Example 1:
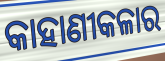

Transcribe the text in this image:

କାହାଣୀକଳାର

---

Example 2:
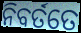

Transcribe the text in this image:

ନିବର୍ତତେ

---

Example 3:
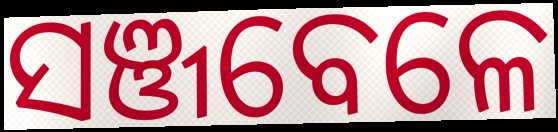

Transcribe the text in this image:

ସଞ୍ଜବେଳେ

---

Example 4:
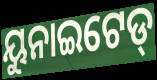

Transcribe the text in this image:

ୟୁନାଇଟେଡ୍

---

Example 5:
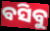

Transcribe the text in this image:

ବସିବୁ